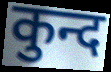
कुन्द